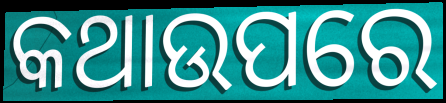
କଥାଉପରେ